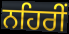
ਨਹਿਰੀਂ